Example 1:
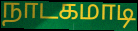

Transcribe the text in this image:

நாடகமாடி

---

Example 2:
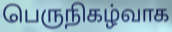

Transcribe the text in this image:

பெருநிகழ்வாக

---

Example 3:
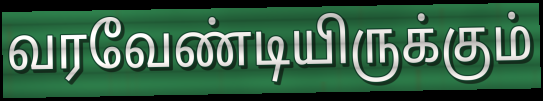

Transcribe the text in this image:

வரவேண்டியிருக்கும்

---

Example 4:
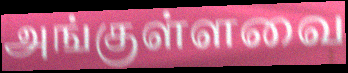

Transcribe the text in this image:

அங்குள்ளவை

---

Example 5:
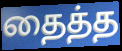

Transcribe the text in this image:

தைத்த